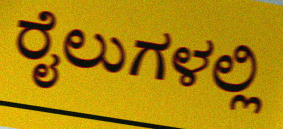
ರೈಲುಗಳಲ್ಲಿ